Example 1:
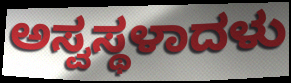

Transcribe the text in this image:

ಅಸ್ವಸ್ಥಳಾದಳು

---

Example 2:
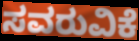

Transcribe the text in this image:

ಸವರುವಿಕೆ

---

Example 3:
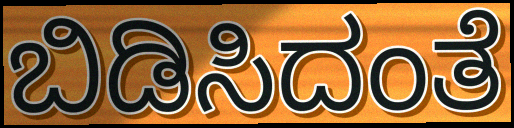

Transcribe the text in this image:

ಬಿಡಿಸಿದಂತೆ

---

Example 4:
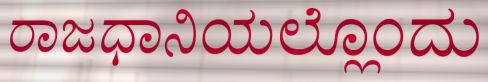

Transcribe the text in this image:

ರಾಜಧಾನಿಯಲ್ಲೊಂದು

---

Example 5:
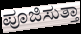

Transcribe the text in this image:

ಪೂಜಿಸುತ್ತಾ